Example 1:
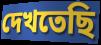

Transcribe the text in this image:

দেখতেছি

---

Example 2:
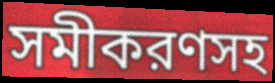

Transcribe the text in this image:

সমীকরণসহ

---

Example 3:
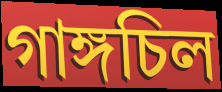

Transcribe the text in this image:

গাঙ্গচিল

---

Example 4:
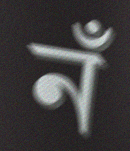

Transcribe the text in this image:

নঁ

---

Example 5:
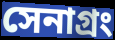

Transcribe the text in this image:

সেনাগ্রং